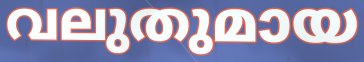
വലുതുമായ